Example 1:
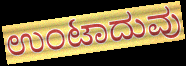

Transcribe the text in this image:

ಉಂಟಾದುವು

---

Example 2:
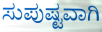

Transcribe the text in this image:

ಸುಪುಷ್ಟವಾಗಿ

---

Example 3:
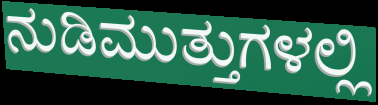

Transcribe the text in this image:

ನುಡಿಮುತ್ತುಗಳಲ್ಲಿ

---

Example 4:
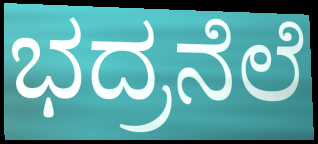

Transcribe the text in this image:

ಭದ್ರನೆಲೆ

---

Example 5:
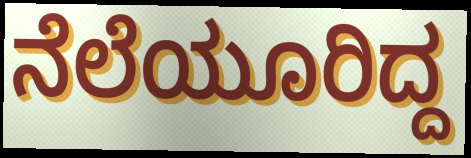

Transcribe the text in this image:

ನೆಲೆಯೂರಿದ್ದ